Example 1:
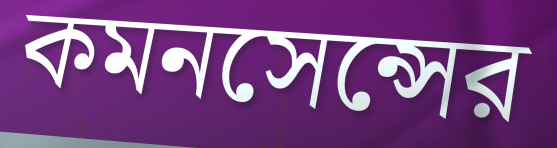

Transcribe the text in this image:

কমনসেন্সের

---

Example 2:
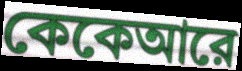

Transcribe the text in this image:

কেকেআরে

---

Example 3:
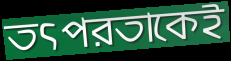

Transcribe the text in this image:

তৎপরতাকেই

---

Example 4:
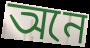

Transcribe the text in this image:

অনে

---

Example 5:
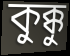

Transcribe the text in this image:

কুক্কু